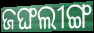
ଜଙ୍ଘଲୀଙ୍ଗ